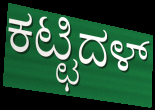
ಕಟ್ಟಿದಳ್